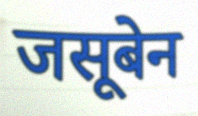
जसूबेन